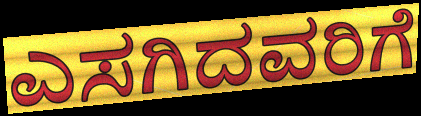
ಎಸಗಿದವರಿಗೆ